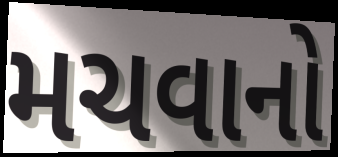
મચવાનો